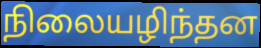
நிலையழிந்தன